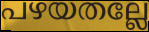
പഴയതല്ലേ